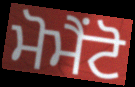
ਮੋਮੈਂਟੋ